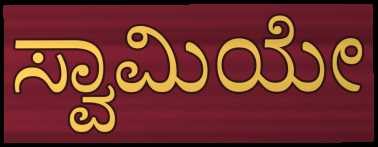
ಸ್ವಾಮಿಯೇ